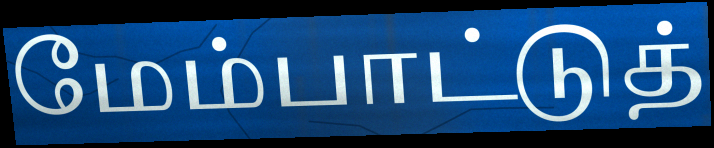
மேம்பாட்டுத்